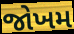
જોખમ